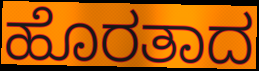
ಹೊರತಾದ